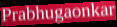
Prabhugaonkar